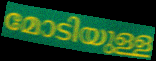
മോടിയുള്ള